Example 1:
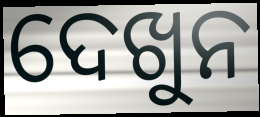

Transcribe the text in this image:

ଦେଖୁନ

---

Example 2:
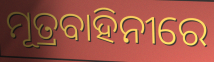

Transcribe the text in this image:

ମୂତ୍ରବାହିନୀରେ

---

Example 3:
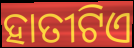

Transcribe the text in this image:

ହାତୀଟିଏ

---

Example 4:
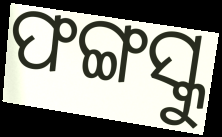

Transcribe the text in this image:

ଫଙ୍ଗସ୍କୁ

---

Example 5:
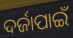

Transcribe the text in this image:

ଦର୍ଜାପାଇଁ